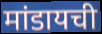
मांडायची